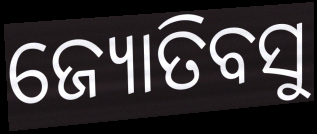
ଜ୍ୟୋତିବସୁ